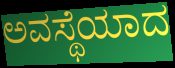
ಅವಸ್ಥೆಯಾದ